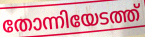
തോന്നിയേടത്ത്